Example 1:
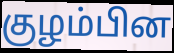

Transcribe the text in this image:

குழம்பின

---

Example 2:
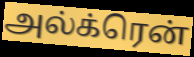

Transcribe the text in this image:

அல்க்ரென்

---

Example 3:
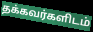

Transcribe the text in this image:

தக்கவர்களிடம்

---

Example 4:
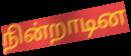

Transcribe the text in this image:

நின்றாடின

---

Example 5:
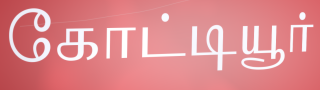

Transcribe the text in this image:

கோட்டியூர்